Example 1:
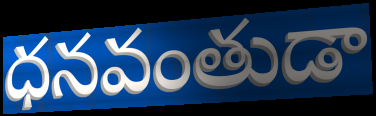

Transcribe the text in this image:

ధనవంతుడా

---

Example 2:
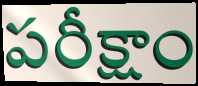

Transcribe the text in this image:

పరీక్షాం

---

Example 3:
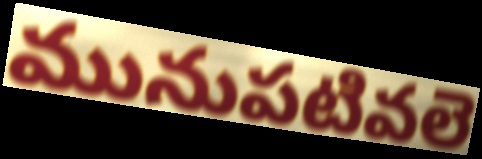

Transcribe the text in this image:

మునుపటివలె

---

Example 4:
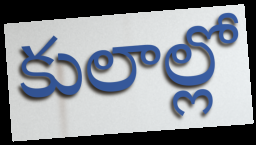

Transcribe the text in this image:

కులాల్లో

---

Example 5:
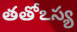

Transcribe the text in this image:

తతోఽస్య